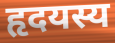
हृदयस्य